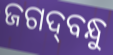
ଜଗଦ୍‌ବନ୍ଧୁ